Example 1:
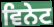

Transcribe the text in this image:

ਵਿਨੇਟ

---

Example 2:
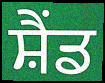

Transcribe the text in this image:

ਸ਼ੈਂਡ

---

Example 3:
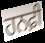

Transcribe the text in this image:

ਹਨਫ਼ੀ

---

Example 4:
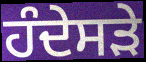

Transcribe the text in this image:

ਹੰਦੇਸੜੇ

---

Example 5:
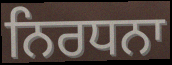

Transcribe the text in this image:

ਨਿਰਧਨਾ